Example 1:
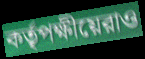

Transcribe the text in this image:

কর্তৃপক্ষীয়েরাও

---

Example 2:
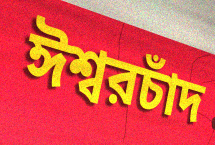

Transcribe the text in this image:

ঈশ্বরচাঁদ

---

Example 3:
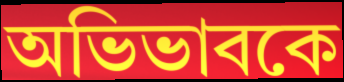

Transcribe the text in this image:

অভিভাবকে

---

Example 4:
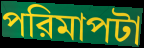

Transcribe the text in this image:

পরিমাপটা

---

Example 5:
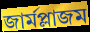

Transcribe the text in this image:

জার্মপ্লাজম